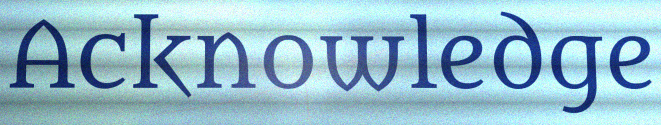
Acknowledge